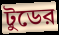
টুডের